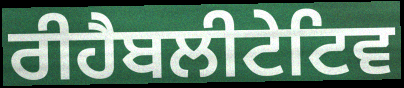
ਰੀਹੈਬਲੀਟੇਟਿਵ